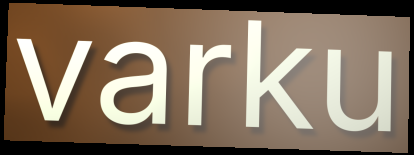
varku